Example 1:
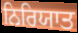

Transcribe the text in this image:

ਨਿਰਿਯਾਤ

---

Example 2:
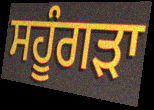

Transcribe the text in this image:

ਸਹੂੰਗੜਾ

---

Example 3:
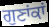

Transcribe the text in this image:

ਗੁਣਾਂਕਾਂ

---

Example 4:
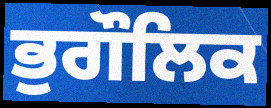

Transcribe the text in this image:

ਭੁਗੌਲਿਕ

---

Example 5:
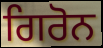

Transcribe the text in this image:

ਗਿਰੋਨ